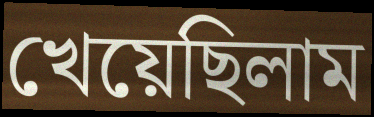
খেয়েছিলাম